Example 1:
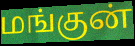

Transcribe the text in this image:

மங்குன்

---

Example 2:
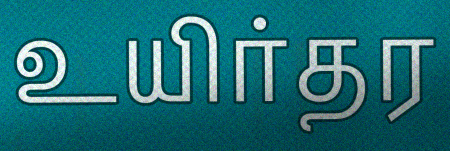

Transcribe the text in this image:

உயிர்தர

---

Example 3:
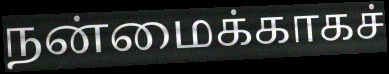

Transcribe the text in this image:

நன்மைக்காகச்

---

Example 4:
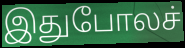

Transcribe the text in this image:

இதுபோலச்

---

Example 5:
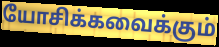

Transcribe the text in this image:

யோசிக்கவைக்கும்